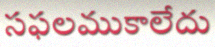
సఫలముకాలేదు